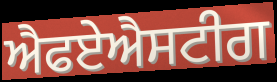
ਐਫਏਐਸਟੀਗ